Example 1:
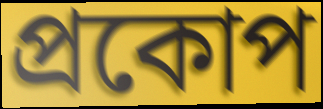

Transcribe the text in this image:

প্ৰকোপ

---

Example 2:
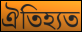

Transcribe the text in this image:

ঐতিহ্যত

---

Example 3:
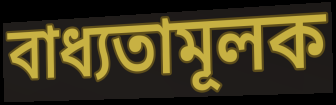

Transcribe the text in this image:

বাধ্যতামূলক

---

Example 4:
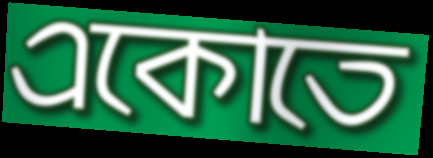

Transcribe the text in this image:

একোতে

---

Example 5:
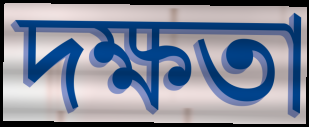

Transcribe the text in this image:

দক্ষতা